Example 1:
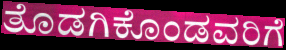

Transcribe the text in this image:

ತೊಡಗಿಕೊಂಡವರಿಗೆ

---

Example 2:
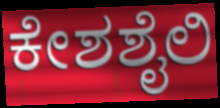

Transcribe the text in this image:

ಕೇಶಶೈಲಿ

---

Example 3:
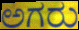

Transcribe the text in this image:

ಅಗರು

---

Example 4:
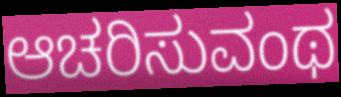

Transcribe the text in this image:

ಆಚರಿಸುವಂಥ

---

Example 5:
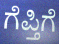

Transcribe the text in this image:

ಗೆಪ್ತಿಗೆ